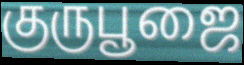
குருபூஜை